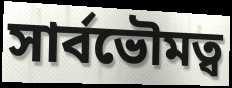
সার্বভৌমত্ব